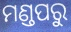
ମଣ୍ଡପରୁ